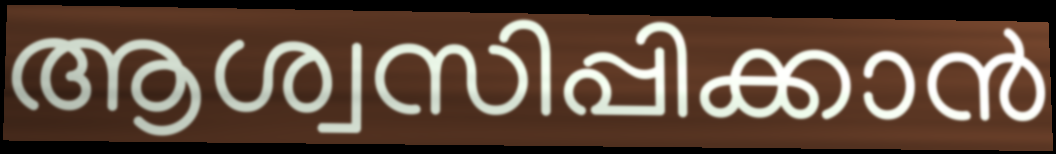
ആശ്വസിപ്പിക്കാൻ